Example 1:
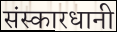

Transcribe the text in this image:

संस्कारधानी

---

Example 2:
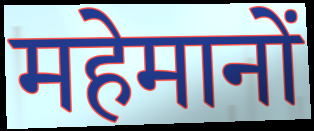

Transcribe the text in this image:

महेमानों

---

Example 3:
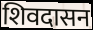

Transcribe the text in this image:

शिवदासन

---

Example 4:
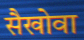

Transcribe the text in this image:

सैखोवा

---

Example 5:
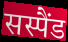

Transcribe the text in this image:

सस्पैंड